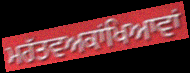
ਮਹੱਤਵਅਕਾਂਖਿਆਵਾਂ